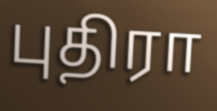
புதிரா